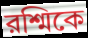
রশ্মিকে